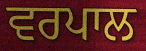
ਵਰਪਾਲ